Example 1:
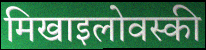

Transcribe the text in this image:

मिखाइलोवस्की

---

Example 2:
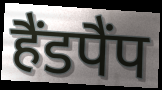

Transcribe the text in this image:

हैंडपैंप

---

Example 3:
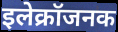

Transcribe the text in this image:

इलेक्रॉजनक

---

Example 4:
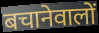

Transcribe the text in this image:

बचानेवालों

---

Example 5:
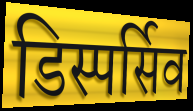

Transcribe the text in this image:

डिस्पर्सिव